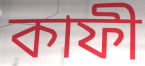
কাফী